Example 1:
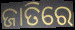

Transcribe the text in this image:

ଜାତିରେ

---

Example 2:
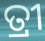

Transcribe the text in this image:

ତ୍ରୀ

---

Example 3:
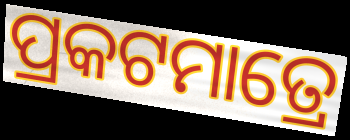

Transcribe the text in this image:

ପ୍ରକଟମାତ୍ରେ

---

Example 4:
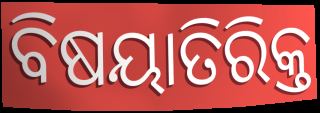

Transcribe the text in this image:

ବିଷୟାତିରିକ୍ତ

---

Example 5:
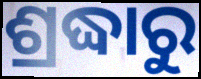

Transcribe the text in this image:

ଶ୍ରଦ୍ଧାରୁ